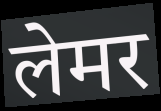
लेमर